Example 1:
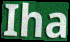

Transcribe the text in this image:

Iha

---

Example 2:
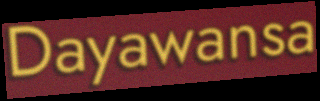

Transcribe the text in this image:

Dayawansa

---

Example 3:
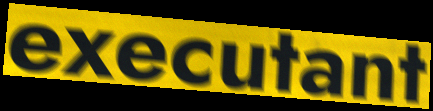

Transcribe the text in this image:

executant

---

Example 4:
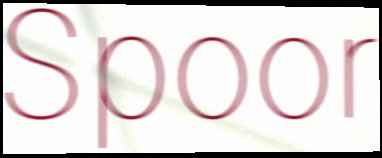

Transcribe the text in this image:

Spoor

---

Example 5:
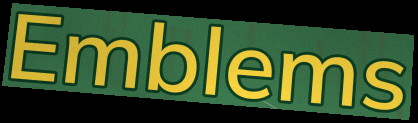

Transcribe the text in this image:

Emblems